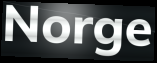
Norge